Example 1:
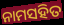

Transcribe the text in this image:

ନାମସହିତ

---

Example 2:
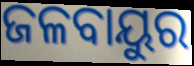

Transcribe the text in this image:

ଜଳବାୟୁର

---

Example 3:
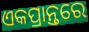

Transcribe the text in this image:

ଏକପ୍ରାନ୍ତରେ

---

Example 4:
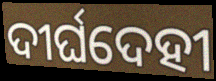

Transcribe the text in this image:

ଦୀର୍ଘଦେହୀ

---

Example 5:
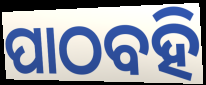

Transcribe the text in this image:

ପାଠବହି